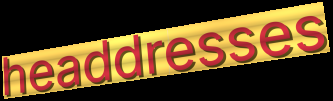
headdresses